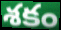
శకం